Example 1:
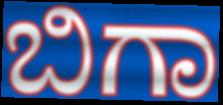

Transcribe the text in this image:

ಬಿಗಾ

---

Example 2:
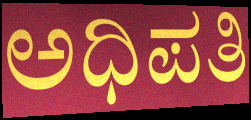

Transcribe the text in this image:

ಅಧಿಪತಿ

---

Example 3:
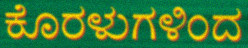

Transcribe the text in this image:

ಕೊರಳುಗಳಿಂದ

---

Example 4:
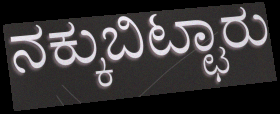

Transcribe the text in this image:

ನಕ್ಕುಬಿಟ್ಟಾರು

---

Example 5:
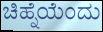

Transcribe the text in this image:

ಚಿಹ್ನೆಯೆಂದು